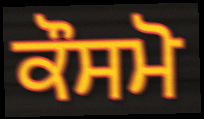
ਕੌਸਮੋ